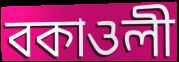
বকাওলী